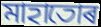
মাহাতোৰ